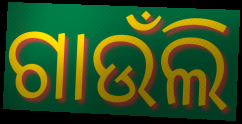
ଗାଉଁଲି